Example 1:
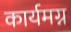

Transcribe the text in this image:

कार्यमग्न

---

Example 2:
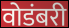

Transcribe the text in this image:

वोडंबरी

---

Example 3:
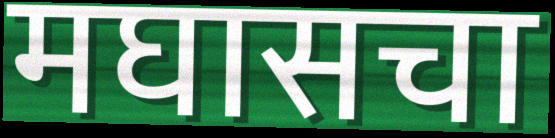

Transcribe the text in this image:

मघासचा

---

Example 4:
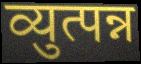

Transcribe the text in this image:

व्युत्पन्न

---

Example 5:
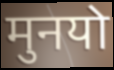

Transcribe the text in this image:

मुनयो